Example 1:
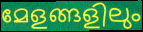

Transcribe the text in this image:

മേളങ്ങളിലും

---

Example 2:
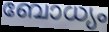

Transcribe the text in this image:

ബോധ്യം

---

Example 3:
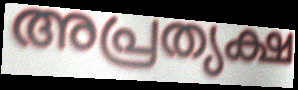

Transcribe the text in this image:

അപ്രത്യക്ഷ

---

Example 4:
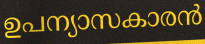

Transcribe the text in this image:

ഉപന്യാസകാരൻ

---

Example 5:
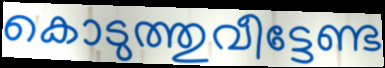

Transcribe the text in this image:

കൊടുത്തുവീട്ടേണ്ട